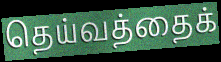
தெய்வத்தைக்